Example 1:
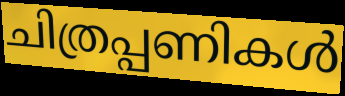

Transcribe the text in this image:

ചിത്രപ്പണികൾ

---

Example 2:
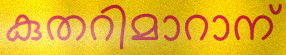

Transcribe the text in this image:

കുതറിമാറാന്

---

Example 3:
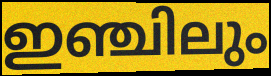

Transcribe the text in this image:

ഇഞ്ചിലും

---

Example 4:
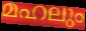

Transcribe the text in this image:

മഹലും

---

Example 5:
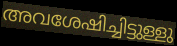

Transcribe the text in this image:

അവശേഷിച്ചിട്ടുള്ളു